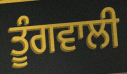
ਤੂੰਗਵਾਲੀ